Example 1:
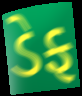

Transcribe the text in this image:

ડેફ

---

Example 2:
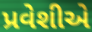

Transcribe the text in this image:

પ્રવેશીએ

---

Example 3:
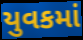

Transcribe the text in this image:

યુવકમાં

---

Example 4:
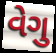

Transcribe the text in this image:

વેગુ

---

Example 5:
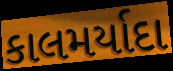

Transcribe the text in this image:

કાલમર્યાદા